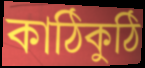
কাঠিকুঠি